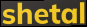
shetal